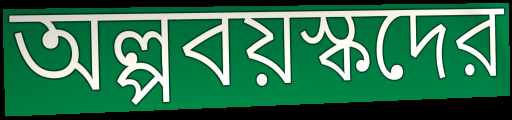
অল্পবয়স্কদের